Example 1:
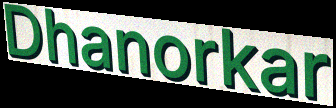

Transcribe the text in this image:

Dhanorkar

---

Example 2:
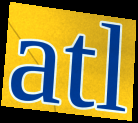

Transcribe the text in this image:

atl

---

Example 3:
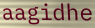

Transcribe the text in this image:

aagidhe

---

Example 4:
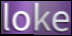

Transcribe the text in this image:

loke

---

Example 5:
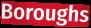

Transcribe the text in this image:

Boroughs